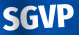
SGVP